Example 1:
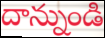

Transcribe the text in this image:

దాన్నుండి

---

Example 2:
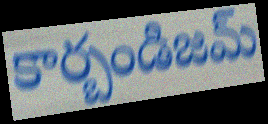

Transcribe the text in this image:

కార్బండిజమ్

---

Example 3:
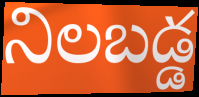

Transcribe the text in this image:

నిలబడ్డ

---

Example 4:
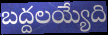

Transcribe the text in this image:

బద్దలయ్యేది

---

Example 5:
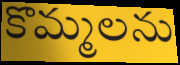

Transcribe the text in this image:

కొమ్మలను